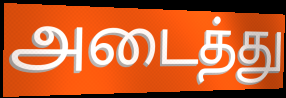
அடைத்து